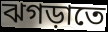
ঝগড়াতে